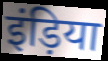
इंड़िया